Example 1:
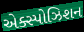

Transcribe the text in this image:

એક્સ્પોઝિશન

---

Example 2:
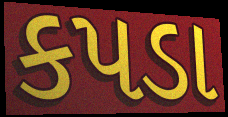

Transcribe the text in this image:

કપડા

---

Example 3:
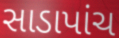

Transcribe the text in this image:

સાડાપાંચ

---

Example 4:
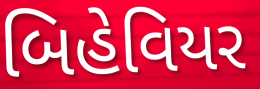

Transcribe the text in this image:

બિહેવિયર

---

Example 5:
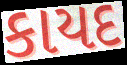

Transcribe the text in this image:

કાયદ